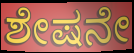
ಶೇಷನೇ